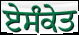
ਏਸੰਕੇਤ